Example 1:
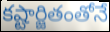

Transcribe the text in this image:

కష్టార్జితంతోనే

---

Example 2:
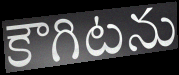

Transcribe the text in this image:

కౌగిటను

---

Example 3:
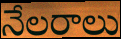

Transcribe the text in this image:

నేలరాలు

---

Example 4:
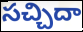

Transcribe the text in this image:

సచ్చిదా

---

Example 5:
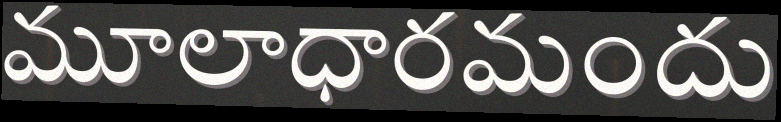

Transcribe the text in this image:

మూలాధారమందు